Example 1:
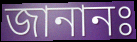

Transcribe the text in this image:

জানানঃ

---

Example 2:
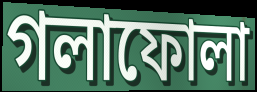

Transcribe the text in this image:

গলাফোলা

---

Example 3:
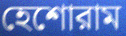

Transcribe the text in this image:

হেশোরাম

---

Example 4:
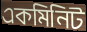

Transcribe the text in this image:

একমিনিট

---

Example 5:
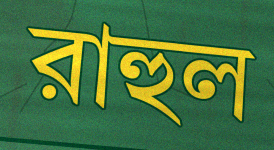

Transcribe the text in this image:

রাহুল